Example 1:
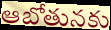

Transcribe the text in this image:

ఆబోతునకు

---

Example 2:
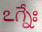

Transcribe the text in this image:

ఽగ్నేః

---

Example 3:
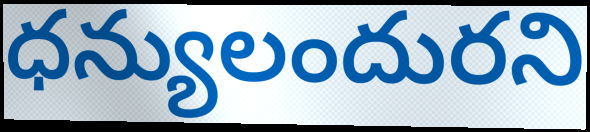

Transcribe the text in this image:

ధన్యులందురని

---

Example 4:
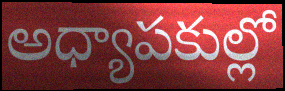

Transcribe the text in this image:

అధ్యాపకుల్లో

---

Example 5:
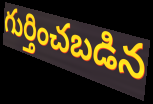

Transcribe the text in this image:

గుర్తించబడిన